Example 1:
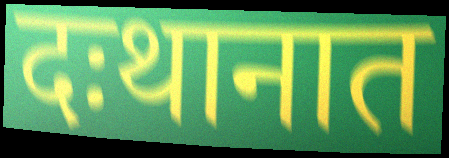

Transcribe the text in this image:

दःथानात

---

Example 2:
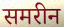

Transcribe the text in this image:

समरीन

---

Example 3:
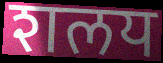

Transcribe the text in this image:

शलय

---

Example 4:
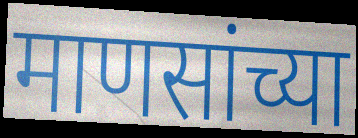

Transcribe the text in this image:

माणसांच्या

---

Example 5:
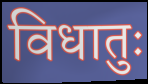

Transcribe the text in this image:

विधातुः